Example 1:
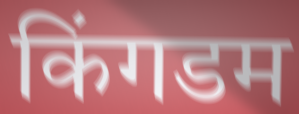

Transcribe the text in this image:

किंगडम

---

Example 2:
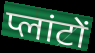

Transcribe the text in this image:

प्लांटों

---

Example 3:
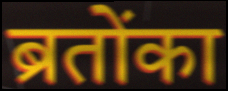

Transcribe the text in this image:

ब्रतोंका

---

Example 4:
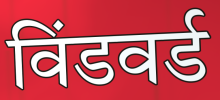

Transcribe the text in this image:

विंडवर्ड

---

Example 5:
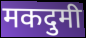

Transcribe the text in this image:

मकदुमी